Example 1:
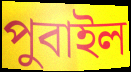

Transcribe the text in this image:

পুবাইল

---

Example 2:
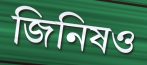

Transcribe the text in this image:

জিনিষও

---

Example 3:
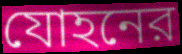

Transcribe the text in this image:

যোহনের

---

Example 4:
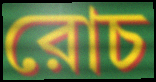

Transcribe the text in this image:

রোচ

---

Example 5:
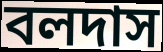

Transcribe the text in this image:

বলদাস